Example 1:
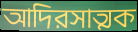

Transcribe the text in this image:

আদিরসাত্মক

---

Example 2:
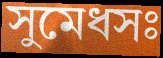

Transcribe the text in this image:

সুমেধসঃ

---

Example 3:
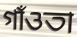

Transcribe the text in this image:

গাঁওতা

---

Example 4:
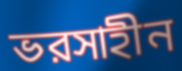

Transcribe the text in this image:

ভরসাহীন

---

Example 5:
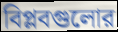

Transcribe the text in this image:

বিপ্লবগুলোর